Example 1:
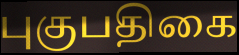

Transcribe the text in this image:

புகுபதிகை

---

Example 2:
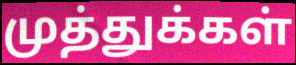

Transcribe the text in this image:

முத்துக்கள்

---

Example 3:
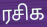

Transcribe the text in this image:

ரசிக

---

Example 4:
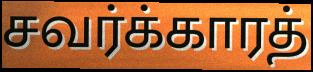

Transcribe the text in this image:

சவர்க்காரத்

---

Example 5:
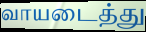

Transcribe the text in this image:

வாயடைத்து